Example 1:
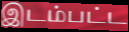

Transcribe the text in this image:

இடம்பட்ட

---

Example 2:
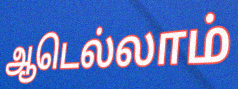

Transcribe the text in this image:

ஆடெல்லாம்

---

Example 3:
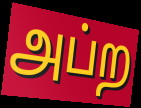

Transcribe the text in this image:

அப்ற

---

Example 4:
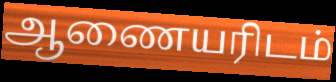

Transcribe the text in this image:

ஆணையரிடம்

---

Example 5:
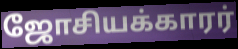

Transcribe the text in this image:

ஜோசியக்காரர்